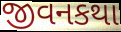
જીવનકથા